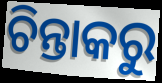
ଚିନ୍ତାକରୁ